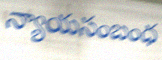
న్యాయసంబంధ